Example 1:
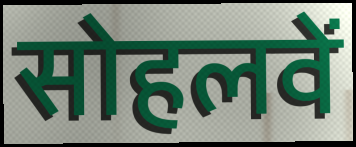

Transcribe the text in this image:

सोहलवें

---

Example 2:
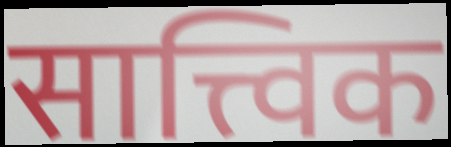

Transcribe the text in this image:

सात्त्विक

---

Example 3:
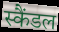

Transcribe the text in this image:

स्कैंडल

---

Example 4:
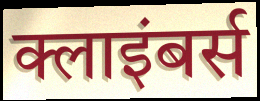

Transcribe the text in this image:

क्लाइंबर्स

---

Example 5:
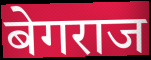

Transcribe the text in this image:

बेगराज